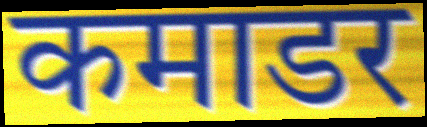
कमाडर